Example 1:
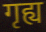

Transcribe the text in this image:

गृह्य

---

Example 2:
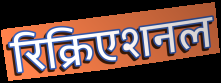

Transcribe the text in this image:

रिक्रिएशनल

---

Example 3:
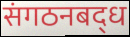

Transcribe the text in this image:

संगठनबद्ध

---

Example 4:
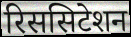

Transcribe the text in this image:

रिससिटेशन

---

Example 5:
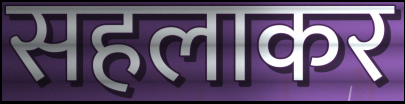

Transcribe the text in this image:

सहलाकर